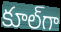
కూల్‌గా